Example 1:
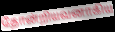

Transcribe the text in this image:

தோன்றியவனாகிய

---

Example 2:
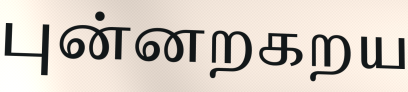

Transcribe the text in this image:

புன்னறகறய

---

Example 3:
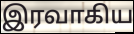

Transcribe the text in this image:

இரவாகிய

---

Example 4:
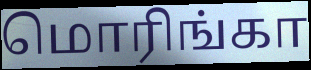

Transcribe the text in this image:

மொரிங்கா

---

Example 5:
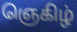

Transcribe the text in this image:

ஞெகிழ்